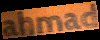
ahmad